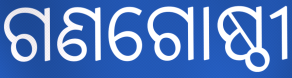
ଗଣଗୋଷ୍ଠୀ